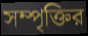
সম্পৃক্তির